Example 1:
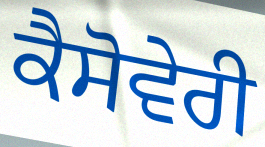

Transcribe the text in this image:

ਕੈਸੋਵੇਰੀ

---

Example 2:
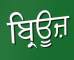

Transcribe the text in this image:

ਬ੍ਰਿਊਜ਼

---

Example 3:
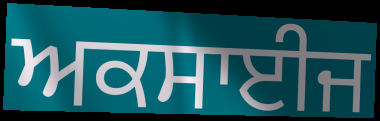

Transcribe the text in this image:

ਅਕਸਾਈਜ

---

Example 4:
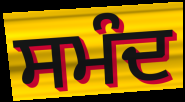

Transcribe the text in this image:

ਸਮੰਦ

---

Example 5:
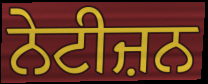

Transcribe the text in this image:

ਨੇਟੀਜ਼ਨ